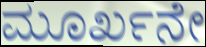
ಮೂರ್ಖನೇ